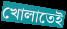
খোলাতেই